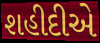
શહીદીએ